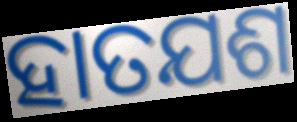
ହାତଯଶ